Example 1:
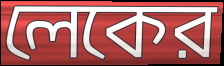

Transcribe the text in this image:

লেকের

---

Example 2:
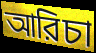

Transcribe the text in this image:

আরিচা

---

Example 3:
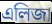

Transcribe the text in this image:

এলিজা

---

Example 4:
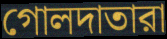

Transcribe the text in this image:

গোলদাতারা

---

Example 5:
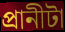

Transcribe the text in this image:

প্রানীটা